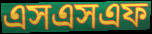
এসএসএফ